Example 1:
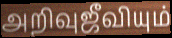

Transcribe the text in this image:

அறிவுஜீவியும்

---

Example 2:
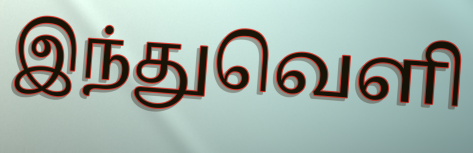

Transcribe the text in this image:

இந்துவெளி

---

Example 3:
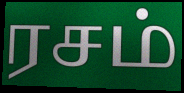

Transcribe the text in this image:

ரசம்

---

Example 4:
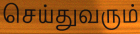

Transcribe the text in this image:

செய்துவரும்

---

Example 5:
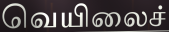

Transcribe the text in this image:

வெயிலைச்